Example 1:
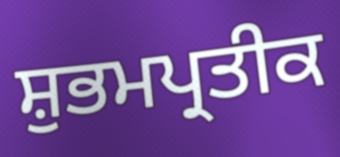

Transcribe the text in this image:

ਸ਼ੁਭਮਪ੍ਰਤੀਕ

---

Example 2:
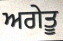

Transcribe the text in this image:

ਅਗੇਤੂ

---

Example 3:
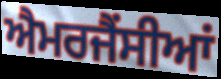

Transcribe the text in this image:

ਐਮਰਜੈਂਸੀਆਂ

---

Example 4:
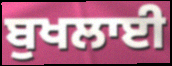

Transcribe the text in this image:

ਬੁਖਲਾਈ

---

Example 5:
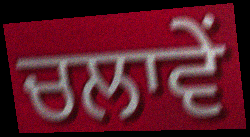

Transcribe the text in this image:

ਚਲਾਵੇਂ